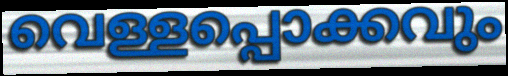
വെള്ളപ്പൊക്കവും